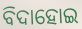
ବିଦାହୋଇ